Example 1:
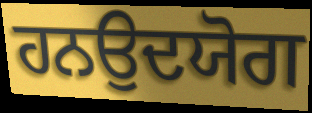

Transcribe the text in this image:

ਹਨਉਦਯੋਗ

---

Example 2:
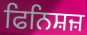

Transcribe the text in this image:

ਫਿਨਿਸ਼ਜ਼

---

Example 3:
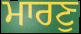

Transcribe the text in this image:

ਮਾਰਣੁ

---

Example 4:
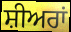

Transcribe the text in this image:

ਸ਼ੀਅਰਾਂ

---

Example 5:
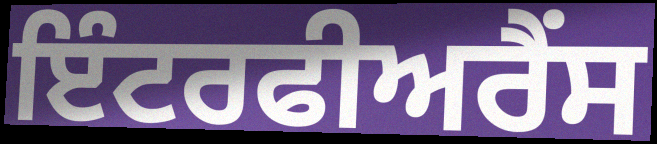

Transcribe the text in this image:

ਇੰਟਰਫੀਅਰੈਂਸ